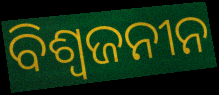
ବିଶ୍ବଜନୀନ